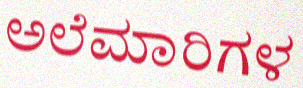
ಅಲೆಮಾರಿಗಳ